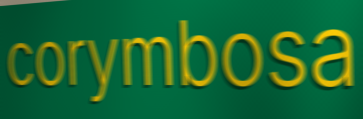
corymbosa